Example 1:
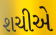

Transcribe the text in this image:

શચીએ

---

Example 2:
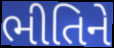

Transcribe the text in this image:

ભીતિને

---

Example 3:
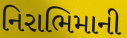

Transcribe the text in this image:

નિરાભિમાની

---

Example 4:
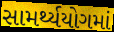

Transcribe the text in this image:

સામર્થ્યયોગમાં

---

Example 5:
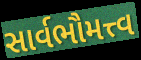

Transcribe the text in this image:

સાર્વભૌમત્ત્વ